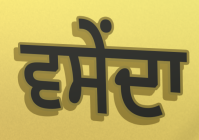
ਵਸੇਂਦਾ